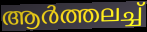
ആർത്തലച്ച്